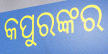
କପୁରଙ୍କର